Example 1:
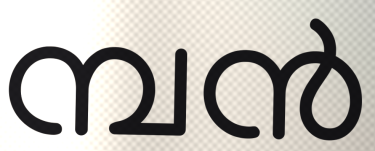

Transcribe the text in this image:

മ്പൻ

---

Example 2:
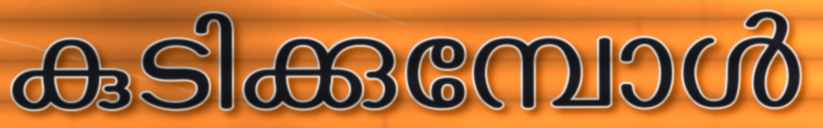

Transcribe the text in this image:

കുടിക്കുമ്പോൾ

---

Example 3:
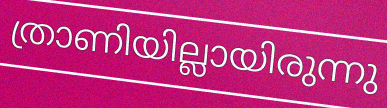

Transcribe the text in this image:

ത്രാണിയില്ലായിരുന്നു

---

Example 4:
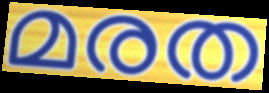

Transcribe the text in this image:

മരത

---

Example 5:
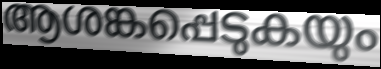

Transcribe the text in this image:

ആശങ്കപ്പെടുകയും